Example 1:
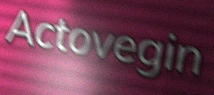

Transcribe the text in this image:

Actovegin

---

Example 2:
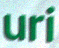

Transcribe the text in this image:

uri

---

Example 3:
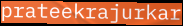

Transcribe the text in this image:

prateekrajurkar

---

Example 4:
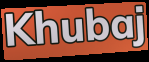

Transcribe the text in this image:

Khubaj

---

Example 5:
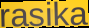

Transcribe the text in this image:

rasika